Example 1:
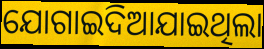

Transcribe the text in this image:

ଯୋଗାଇଦିଆଯାଇଥିଲା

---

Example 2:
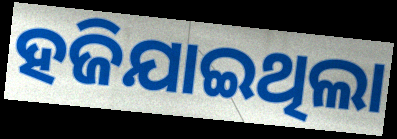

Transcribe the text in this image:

ହଜିଯାଇଥିଲା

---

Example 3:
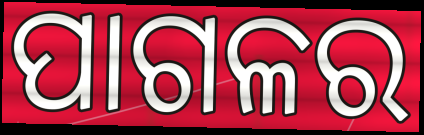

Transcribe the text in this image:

ପାଗଳର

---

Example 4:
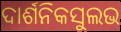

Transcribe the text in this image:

ଦାର୍ଶନିକସୁଲଭ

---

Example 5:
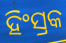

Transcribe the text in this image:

ହିଂସ୍ରକ